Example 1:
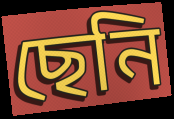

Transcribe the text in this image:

ছেনি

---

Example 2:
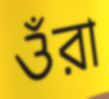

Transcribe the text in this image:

ওঁরা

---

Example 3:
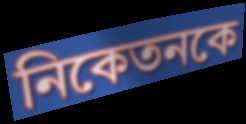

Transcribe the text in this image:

নিকেতনকে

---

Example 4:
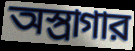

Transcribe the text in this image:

অস্ত্রাগার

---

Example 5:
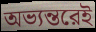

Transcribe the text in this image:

অভ্যন্তরেই